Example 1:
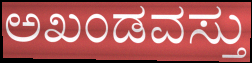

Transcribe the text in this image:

ಅಖಂಡವಸ್ತು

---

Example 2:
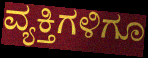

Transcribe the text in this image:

ವ್ಯಕ್ತಿಗಳಿಗೂ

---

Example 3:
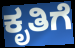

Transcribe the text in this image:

ಕೃತಿಗೆ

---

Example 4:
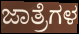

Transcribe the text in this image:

ಜಾತ್ರೆಗಳ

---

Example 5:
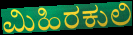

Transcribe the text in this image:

ಮಿಹಿರಕುಲಿ